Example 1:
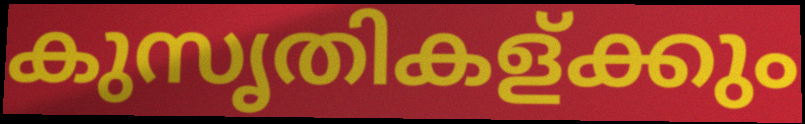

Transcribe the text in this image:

കുസൃതികള്ക്കും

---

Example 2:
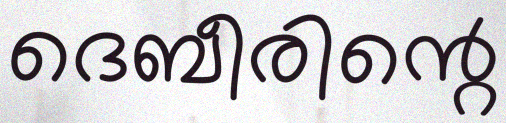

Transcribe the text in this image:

ദെബീരിന്റെ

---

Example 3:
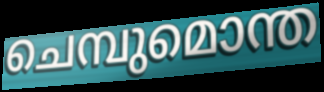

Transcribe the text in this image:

ചെമ്പുമൊന്ത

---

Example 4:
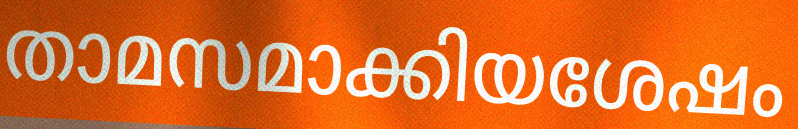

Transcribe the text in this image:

താമസമാക്കിയശേഷം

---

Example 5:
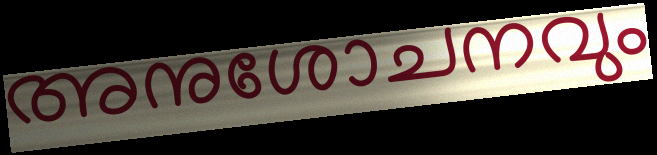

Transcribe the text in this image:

അനുശോചനവും